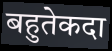
बहुतेकदा